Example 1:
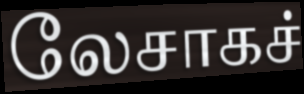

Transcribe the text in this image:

லேசாகச்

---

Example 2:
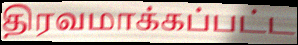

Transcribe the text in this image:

திரவமாக்கப்பட்ட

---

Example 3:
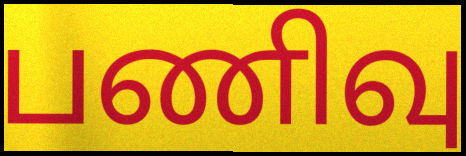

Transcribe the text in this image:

பணிவு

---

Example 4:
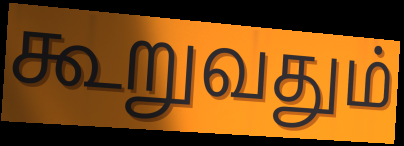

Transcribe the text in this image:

கூறுவதும்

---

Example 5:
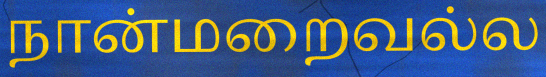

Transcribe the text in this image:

நான்மறைவல்ல